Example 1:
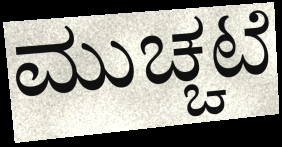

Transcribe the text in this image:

ಮುಚ್ಚಟೆ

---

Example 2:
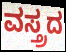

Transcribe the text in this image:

ವಸ್ತ್ರದ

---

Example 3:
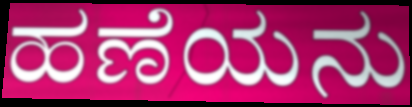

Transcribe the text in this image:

ಹಣೆಯನು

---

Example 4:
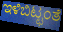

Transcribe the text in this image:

ಇಳಿಬಿಟ್ಟಂತೆ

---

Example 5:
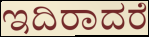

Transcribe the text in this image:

ಇದಿರಾದರೆ